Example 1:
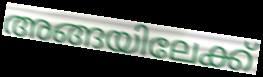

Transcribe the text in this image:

അങ്ങയിലേക്ക്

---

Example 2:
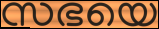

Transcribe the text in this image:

സഭയെ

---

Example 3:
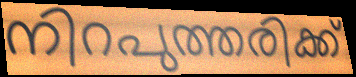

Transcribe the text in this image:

നിറപുത്തരിക്ക്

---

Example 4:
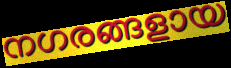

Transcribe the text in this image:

നഗരങ്ങളായ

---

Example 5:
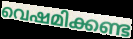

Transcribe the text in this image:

വെഷമിക്കണ്ട